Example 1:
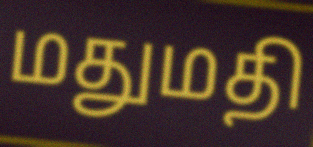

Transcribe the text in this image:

மதுமதி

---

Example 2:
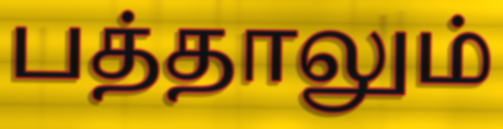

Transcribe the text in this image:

பத்தாலும்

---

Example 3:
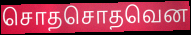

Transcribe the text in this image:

சொதசொதவென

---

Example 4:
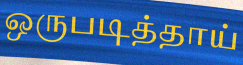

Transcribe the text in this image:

ஒருபடித்தாய்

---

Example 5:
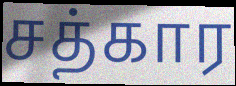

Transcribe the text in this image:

சத்கார